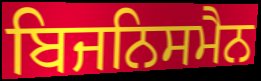
ਬਿਜਨਿਸਮੈਨ